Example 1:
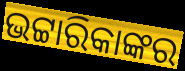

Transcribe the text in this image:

ଭଟ୍ଟାରିକାଙ୍କର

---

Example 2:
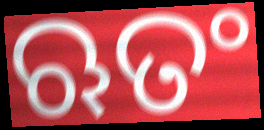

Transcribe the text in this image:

ଋତଂ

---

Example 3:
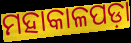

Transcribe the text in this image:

ମହାକାଳପଡ଼ା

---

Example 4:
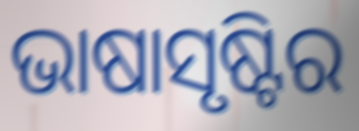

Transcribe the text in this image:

ଭାଷାସୃଷ୍ଟିର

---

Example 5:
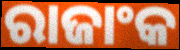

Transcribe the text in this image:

ରାଜାଂକ